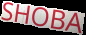
SHOBA